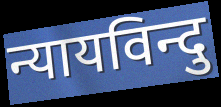
न्यायविन्दु